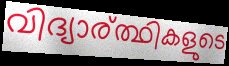
വിദ്യാര്ത്ഥികളുടെ